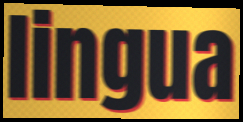
lingua